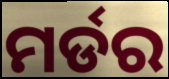
ମର୍ଡର